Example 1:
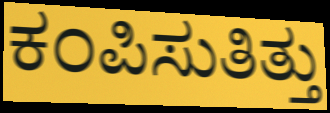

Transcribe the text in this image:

ಕಂಪಿಸುತಿತ್ತು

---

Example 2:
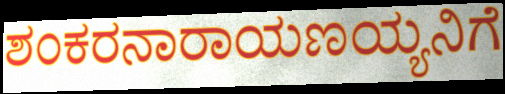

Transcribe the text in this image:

ಶಂಕರನಾರಾಯಣಯ್ಯನಿಗೆ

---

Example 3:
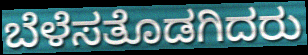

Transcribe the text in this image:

ಬೆಳೆಸತೊಡಗಿದರು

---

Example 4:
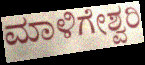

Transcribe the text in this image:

ಮಾಳಿಗೇಶ್ವರಿ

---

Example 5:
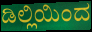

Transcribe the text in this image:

ಡಿಲ್ಲಿಯಿಂದ